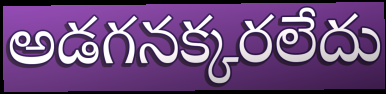
అడగనక్కరలేదు